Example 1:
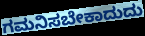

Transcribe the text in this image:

ಗಮನಿಸಬೇಕಾದುದು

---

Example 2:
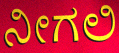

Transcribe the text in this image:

ನೀಗಲಿ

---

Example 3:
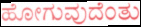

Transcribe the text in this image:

ಹೋಗುವುದೆಂತು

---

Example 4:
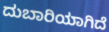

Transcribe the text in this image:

ದುಬಾರಿಯಾಗಿದೆ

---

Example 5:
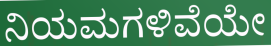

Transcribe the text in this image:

ನಿಯಮಗಳಿವೆಯೇ